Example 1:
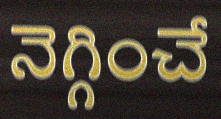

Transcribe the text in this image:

నెగ్గించే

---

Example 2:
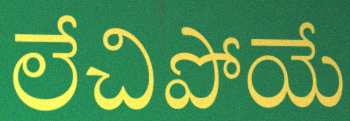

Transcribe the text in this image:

లేచిపోయే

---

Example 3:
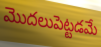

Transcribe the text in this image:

మొదలుపెట్టడమే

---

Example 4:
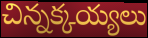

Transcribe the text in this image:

చిన్నక్కయ్యలు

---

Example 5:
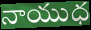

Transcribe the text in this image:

నాయుధ